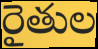
రైతుల